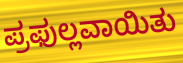
ಪ್ರಫುಲ್ಲವಾಯಿತು